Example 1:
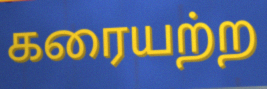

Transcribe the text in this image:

கரையற்ற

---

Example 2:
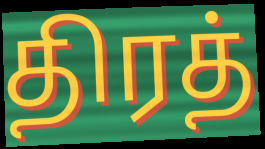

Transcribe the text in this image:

திரத்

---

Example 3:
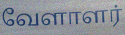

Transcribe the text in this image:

வேளாளர்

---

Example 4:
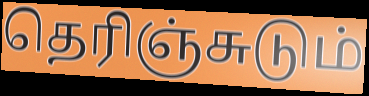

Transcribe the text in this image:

தெரிஞ்சுடும்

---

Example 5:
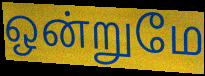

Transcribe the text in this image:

ஒன்றுமே